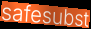
safesubst